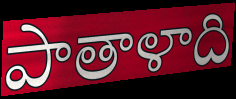
పాతాళాది